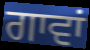
ਗਾਵਾਂ